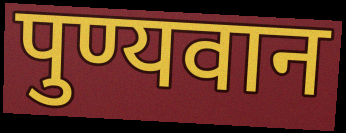
पुण्यवान